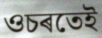
ওচৰতেই